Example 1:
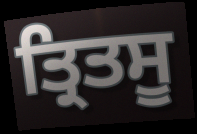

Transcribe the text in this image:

ਤ੍ਰਿਤਸੂ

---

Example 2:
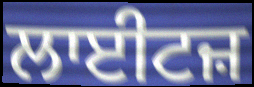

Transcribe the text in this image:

ਲਾਈਟਜ਼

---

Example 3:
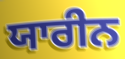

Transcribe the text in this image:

ਯਾਰੀਨ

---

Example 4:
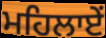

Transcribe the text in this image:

ਮਹਿਲਾਏਂ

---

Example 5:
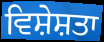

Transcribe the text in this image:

ਵਿਸ਼ੇਸ਼ਤਾ